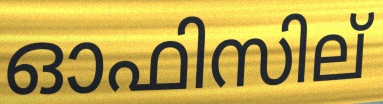
ഓഫിസില്